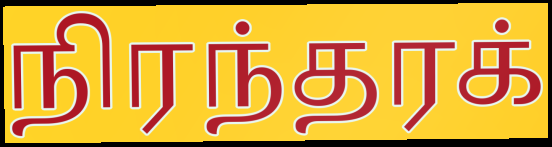
நிரந்தரக்